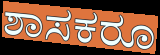
ಶಾಸಕರೂ